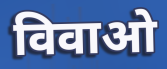
विवाओ